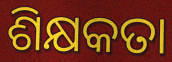
ଶିକ୍ଷକତା